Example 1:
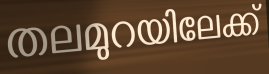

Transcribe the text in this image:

തലമുറയിലേക്ക്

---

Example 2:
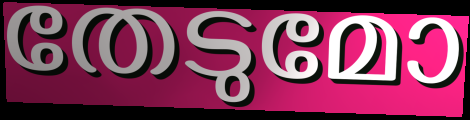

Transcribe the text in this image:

തേടുമോ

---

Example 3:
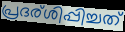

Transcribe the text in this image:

പ്രദര്ശിപ്പിച്ചത്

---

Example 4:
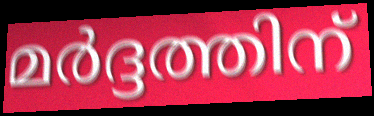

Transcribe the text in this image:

മർദ്ദത്തിന്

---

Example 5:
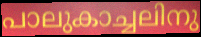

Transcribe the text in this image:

പാലുകാച്ചലിനു